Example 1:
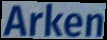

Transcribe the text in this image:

Arken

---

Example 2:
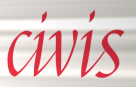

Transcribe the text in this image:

civis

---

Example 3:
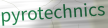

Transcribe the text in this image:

pyrotechnics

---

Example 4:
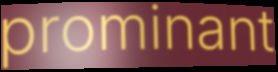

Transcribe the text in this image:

prominant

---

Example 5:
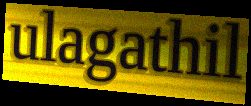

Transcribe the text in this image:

ulagathil